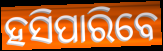
ହସିପାରିବେ